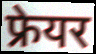
फ्रेयर